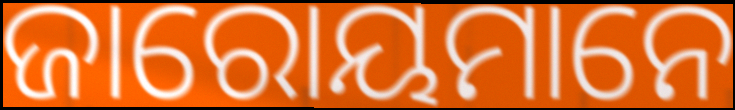
ଜାରୋୟମାନେ